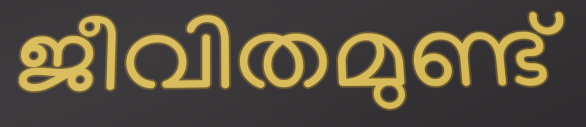
ജീവിതമുണ്ട്